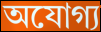
অযোগ্য